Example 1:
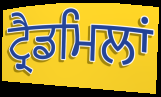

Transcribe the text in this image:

ਟ੍ਰੈਡਮਿਲਾਂ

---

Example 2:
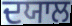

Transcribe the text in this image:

ਦਯਾਲ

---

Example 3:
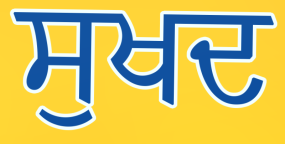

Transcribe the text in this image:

ਸੁਖਦ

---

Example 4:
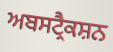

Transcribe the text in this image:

ਅਬਸਟ੍ਰੈਕਸ਼ਨ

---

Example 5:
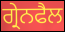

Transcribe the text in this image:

ਗ੍ਰੇਨਫੈਲ